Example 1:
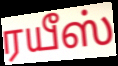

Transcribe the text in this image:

ரயீஸ்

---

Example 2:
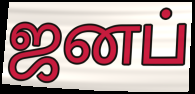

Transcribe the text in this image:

ஜனப்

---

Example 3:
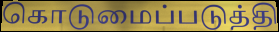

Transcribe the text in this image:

கொடுமைப்படுத்தி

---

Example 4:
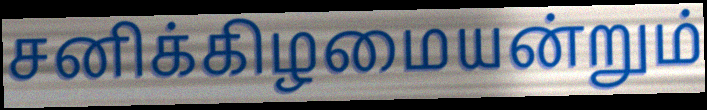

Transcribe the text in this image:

சனிக்கிழமையன்றும்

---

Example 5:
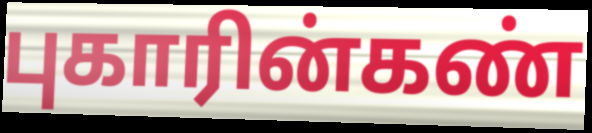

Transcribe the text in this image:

புகாரின்கண்